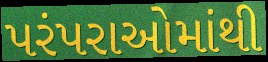
પરંપરાઓમાંથી